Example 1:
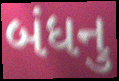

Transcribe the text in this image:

બંધનુ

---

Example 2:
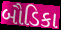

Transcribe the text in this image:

બૌડિકા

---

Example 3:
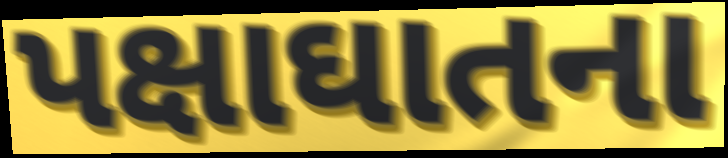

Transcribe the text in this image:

પક્ષાઘાતના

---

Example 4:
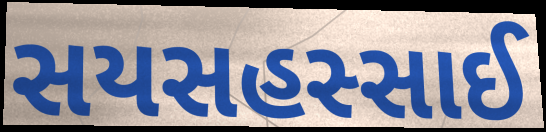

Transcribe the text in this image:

સયસહસ્સાઈ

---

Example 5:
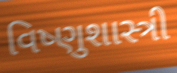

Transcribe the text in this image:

વિષ્ણુશાસ્ત્રી